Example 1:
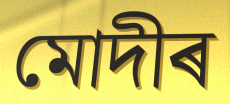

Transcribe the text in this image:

মোদীৰ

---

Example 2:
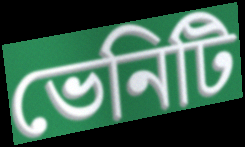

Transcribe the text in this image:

ভেনিটি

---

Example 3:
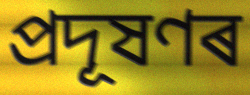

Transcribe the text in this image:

প্ৰদূষণৰ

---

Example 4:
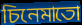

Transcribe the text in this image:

চিনেমাতো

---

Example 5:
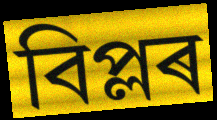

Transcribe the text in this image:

বিপ্লৰ